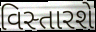
વિસ્તારશે